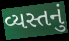
વ્યસ્તનું